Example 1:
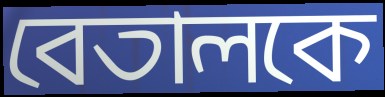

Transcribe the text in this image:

বেতালকে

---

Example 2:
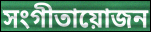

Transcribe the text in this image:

সংগীতায়োজন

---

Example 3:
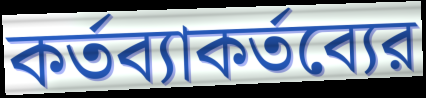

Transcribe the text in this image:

কর্তব্যাকর্তব্যের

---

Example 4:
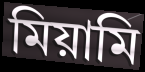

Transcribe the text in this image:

মিয়ামি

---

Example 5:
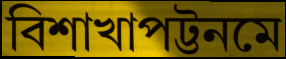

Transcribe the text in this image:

বিশাখাপট্টনমে